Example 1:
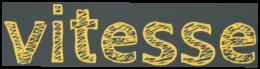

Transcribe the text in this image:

vitesse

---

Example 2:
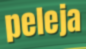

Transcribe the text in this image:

peleja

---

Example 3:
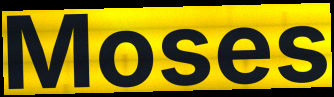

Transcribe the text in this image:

Moses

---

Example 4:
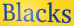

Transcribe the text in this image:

Blacks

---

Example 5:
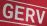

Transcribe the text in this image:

GERV